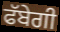
ਫੱਬੇਗੀ